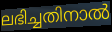
ലഭിച്ചതിനാൽ